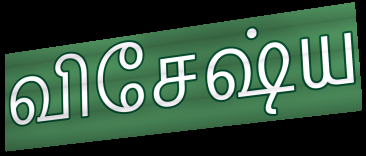
விசேஷ்ய